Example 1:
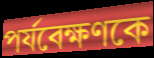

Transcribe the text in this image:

পর্যবেক্ষণকে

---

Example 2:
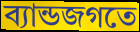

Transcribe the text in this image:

ব্যান্ডজগতে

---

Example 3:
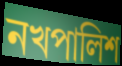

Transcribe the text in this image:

নখপালিশ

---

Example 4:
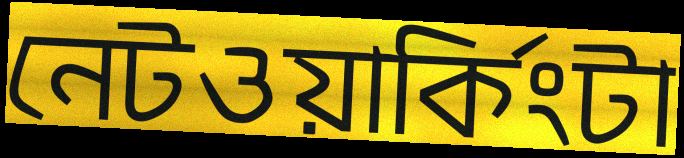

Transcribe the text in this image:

নেটওয়ার্কিংটা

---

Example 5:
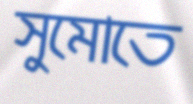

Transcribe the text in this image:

সুমোতে